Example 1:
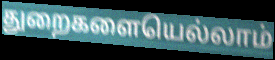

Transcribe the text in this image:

துறைகளையெல்லாம்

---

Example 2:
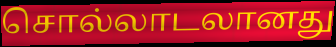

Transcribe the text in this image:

சொல்லாடலானது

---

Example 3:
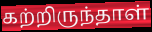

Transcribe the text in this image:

கற்றிருந்தாள்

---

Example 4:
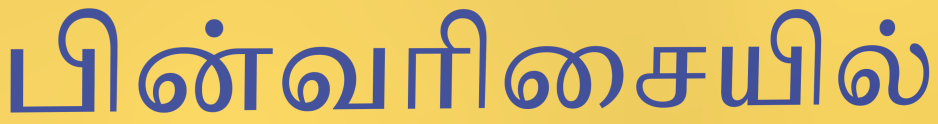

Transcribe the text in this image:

பின்வரிசையில்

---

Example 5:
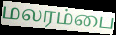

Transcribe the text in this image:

மலரம்பை